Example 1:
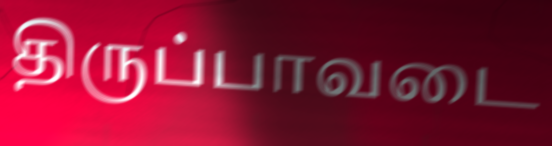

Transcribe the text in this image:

திருப்பாவடை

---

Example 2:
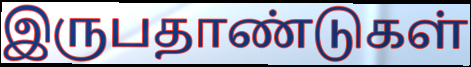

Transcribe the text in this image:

இருபதாண்டுகள்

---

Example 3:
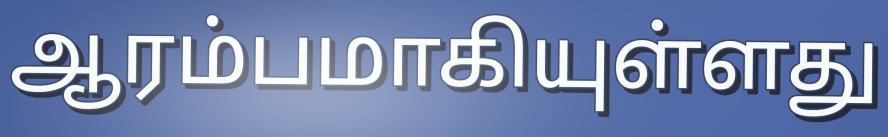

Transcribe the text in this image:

ஆரம்பமாகியுள்ளது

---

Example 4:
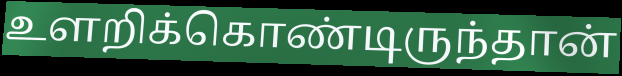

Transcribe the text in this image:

உளறிக்கொண்டிருந்தான்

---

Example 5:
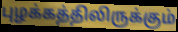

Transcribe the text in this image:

புழக்கத்திலிருக்கும்